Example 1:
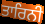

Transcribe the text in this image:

ਤਾਰਿਨੀ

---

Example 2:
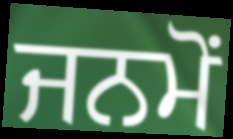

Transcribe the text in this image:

ਜਨਮੋਂ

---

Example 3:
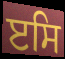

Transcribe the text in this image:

ੲਸਿ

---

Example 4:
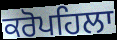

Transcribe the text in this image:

ਕਰੋਪਹਿਲਾ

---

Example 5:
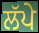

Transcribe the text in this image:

ਲੱਪੇ